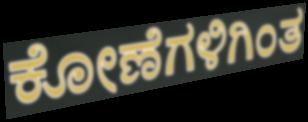
ಕೋಣೆಗಳಿಗಿಂತ